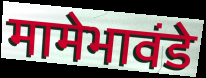
मामेभावंडे